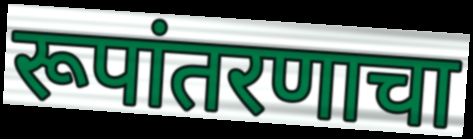
रूपांतरणाचा